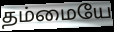
தம்மையே